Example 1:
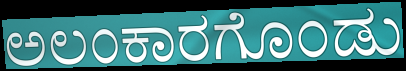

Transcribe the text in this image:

ಅಲಂಕಾರಗೊಂಡು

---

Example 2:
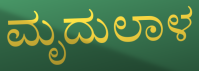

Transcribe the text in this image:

ಮೃದುಲಾಳ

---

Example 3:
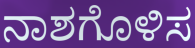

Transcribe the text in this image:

ನಾಶಗೊಳಿಸ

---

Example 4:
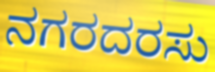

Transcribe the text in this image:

ನಗರದರಸು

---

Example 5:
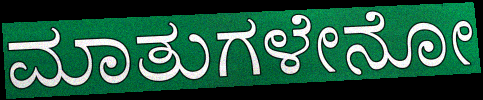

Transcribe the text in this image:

ಮಾತುಗಳೇನೋ